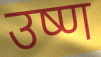
उष्ण